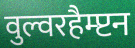
वुल्वरहैम्प्टन